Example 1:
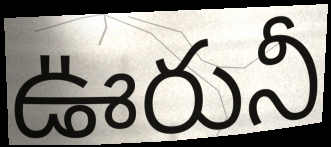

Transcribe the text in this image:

ఊరునీ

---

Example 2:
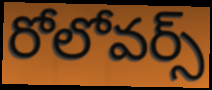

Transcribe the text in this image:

రోలోవర్స్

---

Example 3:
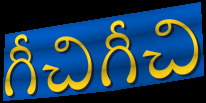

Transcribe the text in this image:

గీచిగీచి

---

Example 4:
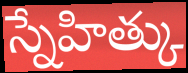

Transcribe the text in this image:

స్నేహిత్కు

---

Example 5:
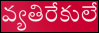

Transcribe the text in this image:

వ్యతిరేకులే